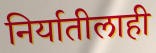
निर्यातीलाही